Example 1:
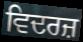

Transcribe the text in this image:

ਵਿਦਰਜ਼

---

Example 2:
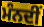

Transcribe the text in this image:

ਮੰਨਦੀਂ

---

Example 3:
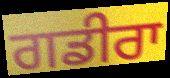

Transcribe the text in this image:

ਗਡੀਰਾ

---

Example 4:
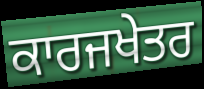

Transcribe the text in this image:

ਕਾਰਜਖੇਤਰ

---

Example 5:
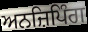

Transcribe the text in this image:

ਅਨਜ਼ਿਪਿੰਗ